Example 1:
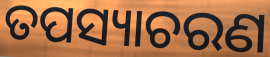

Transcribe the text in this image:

ତପସ୍ୟାଚରଣ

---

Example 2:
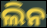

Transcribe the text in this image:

ଲିନ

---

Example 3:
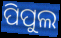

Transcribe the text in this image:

ପିପୁଲ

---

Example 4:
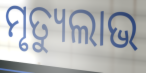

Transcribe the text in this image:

ମୃତ୍ୟୁଲାଭ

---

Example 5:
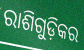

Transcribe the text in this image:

ରାଶିଗୁଡ଼ିକର